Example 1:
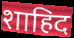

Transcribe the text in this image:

शाहिद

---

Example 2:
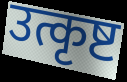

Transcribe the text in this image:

उत्कृष्ट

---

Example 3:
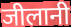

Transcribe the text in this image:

जीलानी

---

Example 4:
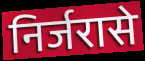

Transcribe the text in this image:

निर्जरासे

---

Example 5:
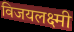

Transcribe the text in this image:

विजयलक्ष्मी